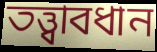
তত্ত্বাবধান